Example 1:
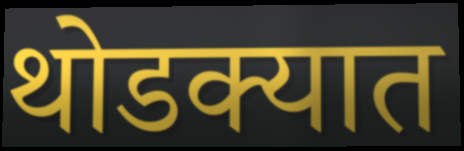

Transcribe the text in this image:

थोडक्यात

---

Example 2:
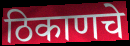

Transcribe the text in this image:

ठिकाणचे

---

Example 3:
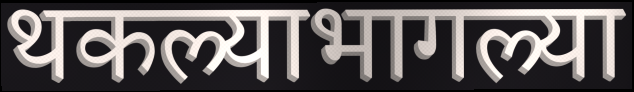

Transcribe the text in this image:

थकल्याभागल्या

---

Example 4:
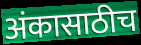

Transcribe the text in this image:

अंकासाठीच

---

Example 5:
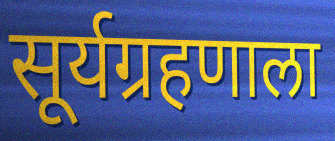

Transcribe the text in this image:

सूर्यग्रहणाला